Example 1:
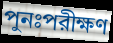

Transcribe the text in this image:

পুনঃপরীক্ষণ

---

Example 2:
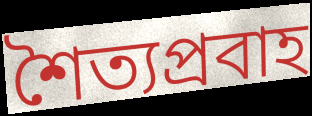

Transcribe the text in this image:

শৈত্যপ্রবাহ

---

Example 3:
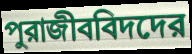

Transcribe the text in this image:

পুরাজীববিদদের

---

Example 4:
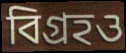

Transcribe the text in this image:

বিগ্রহও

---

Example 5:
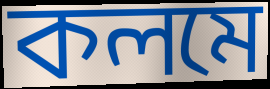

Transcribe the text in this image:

কলমে